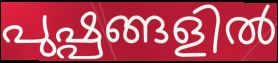
പുഷ്പങ്ങളിൽ